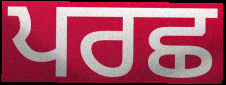
ਪਰਛ